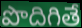
పొదిగితే